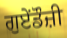
ਗੁਏਂਡੌਜ਼ੀ